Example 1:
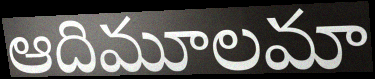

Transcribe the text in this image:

ఆదిమూలమా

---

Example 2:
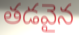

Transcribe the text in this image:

తడవైన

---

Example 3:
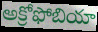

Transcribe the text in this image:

అక్రోఫోబియా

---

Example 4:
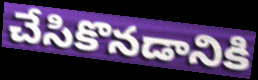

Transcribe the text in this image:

చేసికొనడానికి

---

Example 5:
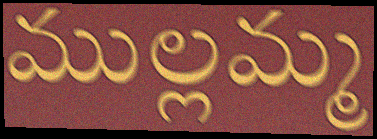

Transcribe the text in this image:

ముల్లమ్మ